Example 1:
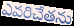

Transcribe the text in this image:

ఎవరిచేతను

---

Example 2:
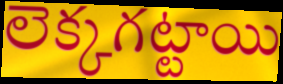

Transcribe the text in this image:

లెక్కగట్టాయి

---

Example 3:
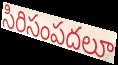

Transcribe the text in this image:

సిరిసంపదలూ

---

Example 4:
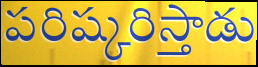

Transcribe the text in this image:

పరిష్కరిస్తాడు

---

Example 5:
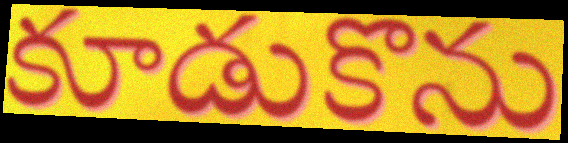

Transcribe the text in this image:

కూడుకొను